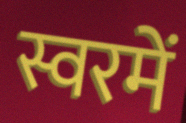
स्वरमें